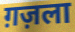
ग़ज़ला